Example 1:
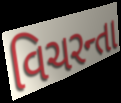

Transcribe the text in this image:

વિચરન્તા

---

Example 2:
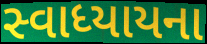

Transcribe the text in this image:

સ્વાધ્યાયના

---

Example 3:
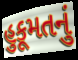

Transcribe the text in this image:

હુકૂમતનું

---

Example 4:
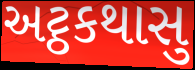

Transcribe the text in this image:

અટ્ઠકથાસુ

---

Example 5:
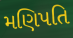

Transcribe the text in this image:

મણિપતિ